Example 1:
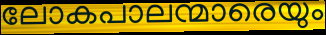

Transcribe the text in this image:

ലോകപാലന്മാരെയും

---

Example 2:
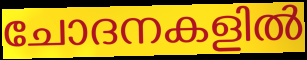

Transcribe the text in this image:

ചോദനകളിൽ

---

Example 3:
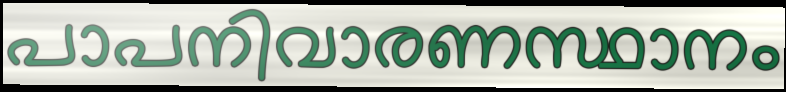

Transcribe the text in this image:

പാപനിവാരണസ്ഥാനം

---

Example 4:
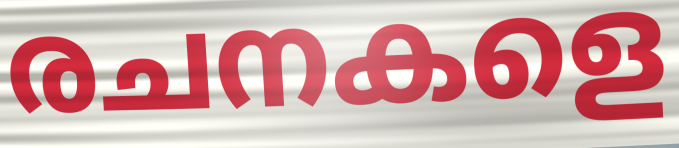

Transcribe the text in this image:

രചനകളെ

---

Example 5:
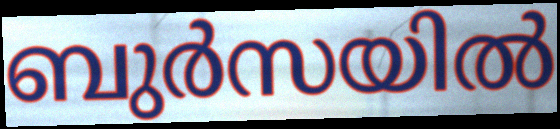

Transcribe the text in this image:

ബുർസയിൽ